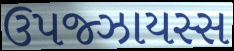
ઉપજ્ઝાયસ્સ